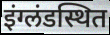
इंग्लंडस्थित